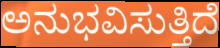
ಅನುಭವಿಸುತ್ತಿದೆ